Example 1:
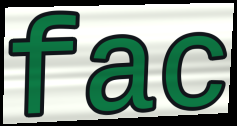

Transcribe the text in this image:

fac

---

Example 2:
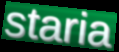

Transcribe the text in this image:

staria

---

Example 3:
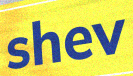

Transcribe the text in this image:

shev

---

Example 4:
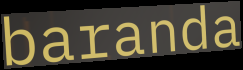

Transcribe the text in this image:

baranda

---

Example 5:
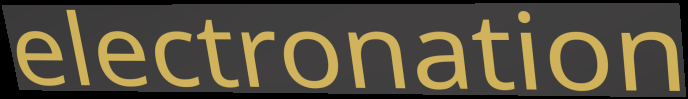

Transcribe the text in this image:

electronation